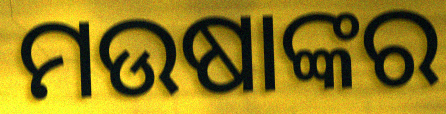
ମଉଷାଙ୍କର